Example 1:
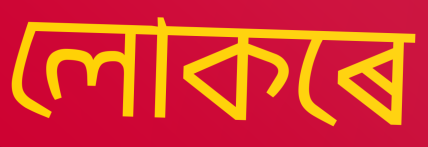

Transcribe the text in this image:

লোকৰে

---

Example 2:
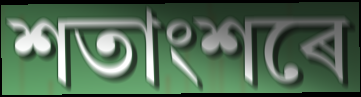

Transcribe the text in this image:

শতাংশৰে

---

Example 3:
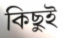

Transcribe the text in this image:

কিছুই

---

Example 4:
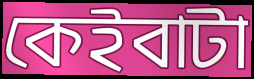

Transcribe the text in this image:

কেইবাটা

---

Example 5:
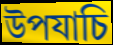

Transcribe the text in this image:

উপযাচি